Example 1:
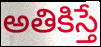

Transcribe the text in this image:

అతికిస్తే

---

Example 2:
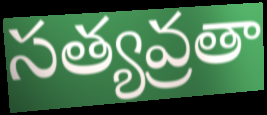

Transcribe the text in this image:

సత్యవ్రతా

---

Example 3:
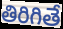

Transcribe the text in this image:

తిరిగితే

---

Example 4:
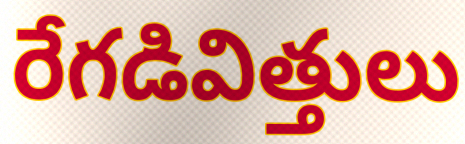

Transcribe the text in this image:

రేగడివిత్తులు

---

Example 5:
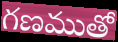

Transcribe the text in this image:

గణముతో